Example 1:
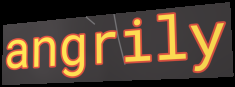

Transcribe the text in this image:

angrily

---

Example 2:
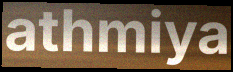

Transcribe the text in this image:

athmiya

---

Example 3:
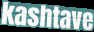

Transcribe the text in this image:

kashtave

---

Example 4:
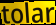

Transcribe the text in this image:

tolar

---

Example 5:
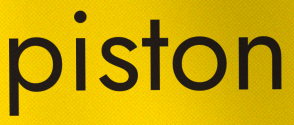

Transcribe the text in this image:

piston